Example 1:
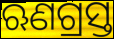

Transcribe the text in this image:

ଋଣଗ୍ରସ୍ତ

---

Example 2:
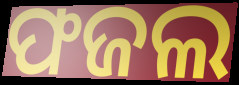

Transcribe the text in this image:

ଫଜଲ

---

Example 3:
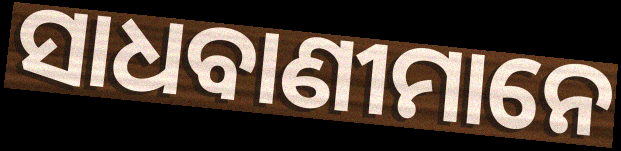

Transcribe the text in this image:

ସାଧବାଣୀମାନେ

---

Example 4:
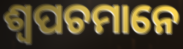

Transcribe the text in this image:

ଶ୍ୱପଚମାନେ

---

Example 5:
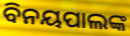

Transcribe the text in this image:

ବିନୟପାଲଙ୍କ